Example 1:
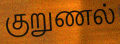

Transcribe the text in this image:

குறுணல்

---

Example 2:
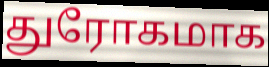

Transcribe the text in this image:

துரோகமாக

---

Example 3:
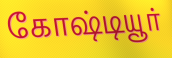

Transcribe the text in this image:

கோஷ்டியூர்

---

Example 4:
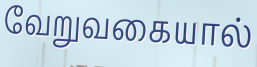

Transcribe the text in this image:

வேறுவகையால்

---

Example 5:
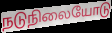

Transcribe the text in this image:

நடுநிலையோடு